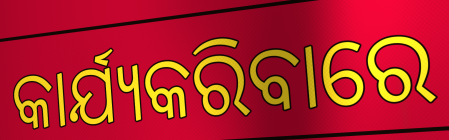
କାର୍ଯ୍ୟକରିବାରେ